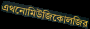
এথনোমিউজিকোলজির